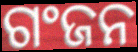
ଗଂଜନ